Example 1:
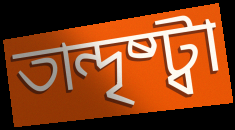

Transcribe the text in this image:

তান্দৃষ্ট্বা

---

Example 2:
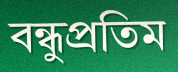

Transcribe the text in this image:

বন্ধুপ্রতিম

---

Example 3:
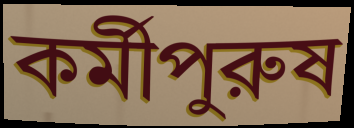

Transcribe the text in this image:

কর্মীপুরুষ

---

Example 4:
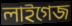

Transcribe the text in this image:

লাইগেজ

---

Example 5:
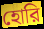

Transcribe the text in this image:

হোরি